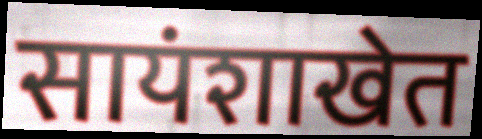
सायंशाखेत